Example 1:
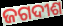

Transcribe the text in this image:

ଜଗଦୀଶ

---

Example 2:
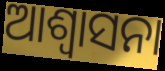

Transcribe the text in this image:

ଆଶ୍ଵାସନା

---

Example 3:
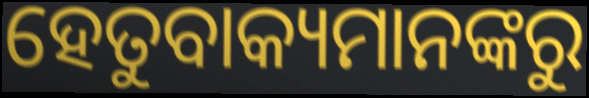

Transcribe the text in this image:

ହେତୁବାକ୍ୟମାନଙ୍କରୁ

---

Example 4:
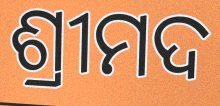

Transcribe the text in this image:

ଶ୍ରୀମଦ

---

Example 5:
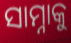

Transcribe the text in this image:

ସାମ୍ନାକୁ